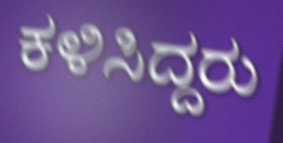
ಕಳಿಸಿದ್ದರು